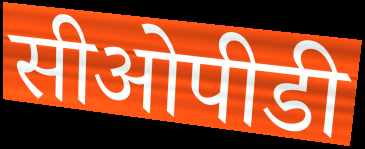
सीओपीडी